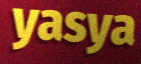
yasya